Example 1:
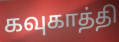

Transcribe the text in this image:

கவுகாத்தி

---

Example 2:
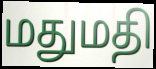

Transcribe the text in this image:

மதுமதி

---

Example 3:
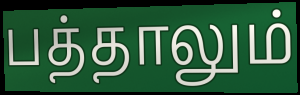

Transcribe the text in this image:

பத்தாலும்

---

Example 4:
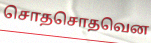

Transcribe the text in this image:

சொதசொதவென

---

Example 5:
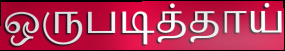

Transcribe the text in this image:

ஒருபடித்தாய்